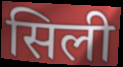
सिली